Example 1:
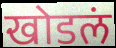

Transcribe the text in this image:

खोडलं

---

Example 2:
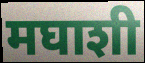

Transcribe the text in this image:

मघाशी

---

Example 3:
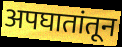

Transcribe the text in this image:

अपघातांतून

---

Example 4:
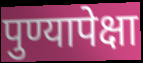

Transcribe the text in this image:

पुण्यापेक्षा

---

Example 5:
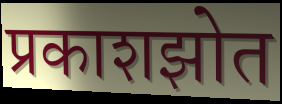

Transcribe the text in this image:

प्रकाशझोत